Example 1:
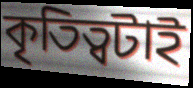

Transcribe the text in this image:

কৃতিত্বটাই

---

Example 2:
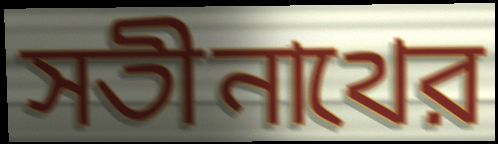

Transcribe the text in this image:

সতীনাথের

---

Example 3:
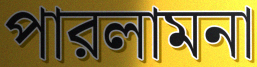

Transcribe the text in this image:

পারলামনা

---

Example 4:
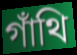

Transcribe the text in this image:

গাঁথি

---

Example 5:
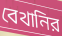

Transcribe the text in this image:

বেথানির